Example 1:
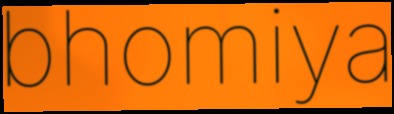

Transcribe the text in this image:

bhomiya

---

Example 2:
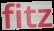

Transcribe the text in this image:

fitz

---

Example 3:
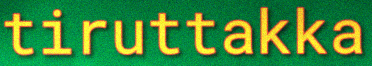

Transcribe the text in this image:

tiruttakka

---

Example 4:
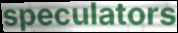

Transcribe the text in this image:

speculators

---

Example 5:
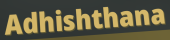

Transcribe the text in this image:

Adhishthana